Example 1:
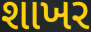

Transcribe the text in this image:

શાખર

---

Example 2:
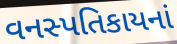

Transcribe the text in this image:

વનસ્પતિકાયનાં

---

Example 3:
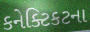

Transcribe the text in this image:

કનેક્ટિકટના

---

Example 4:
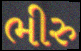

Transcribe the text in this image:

ભીરુ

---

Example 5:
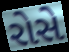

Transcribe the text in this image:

રોસે